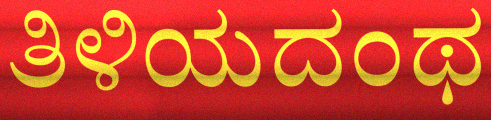
ತಿಳಿಯದಂಥ